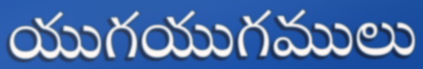
యుగయుగములు